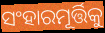
ସଂହାରମୂର୍ତ୍ତିକୁ